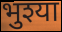
भुश्या